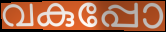
വകുപ്പോ